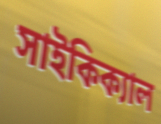
সাইকিক্যাল